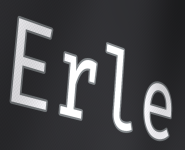
Erle